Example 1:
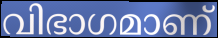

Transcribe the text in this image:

വിഭാഗമാണ്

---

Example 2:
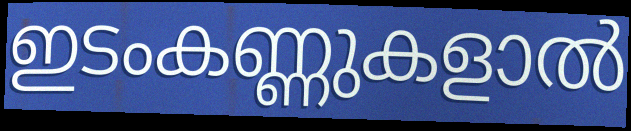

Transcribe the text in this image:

ഇടംകണ്ണുകളാൽ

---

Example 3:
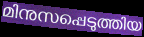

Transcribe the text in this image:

മിനുസപ്പെടുത്തിയ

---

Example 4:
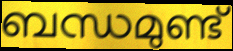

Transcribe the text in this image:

ബന്ധമുണ്ട്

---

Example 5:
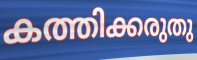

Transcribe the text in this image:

കത്തിക്കരുതു